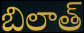
బిలాత్